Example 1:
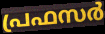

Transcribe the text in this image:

പ്രഫസർ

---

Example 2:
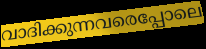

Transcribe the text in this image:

വാദിക്കുന്നവരെപ്പോലെ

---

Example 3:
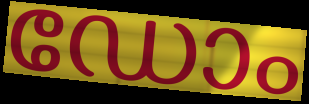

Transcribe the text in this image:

ഡോം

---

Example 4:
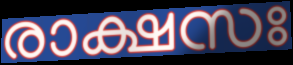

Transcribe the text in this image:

രാക്ഷസഃ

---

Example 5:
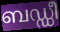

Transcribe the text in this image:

ബഡ്ഡീ